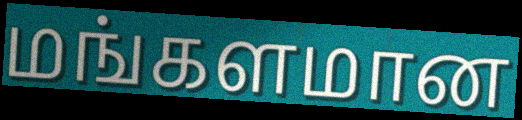
மங்களமான